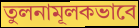
তুলনামূলকভাবে